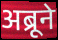
अब्रूने